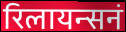
रिलायन्सनं